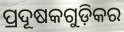
ପ୍ରଦୂଷକଗୁଡ଼ିକର